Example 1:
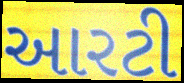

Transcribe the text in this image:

આરટી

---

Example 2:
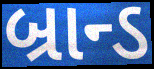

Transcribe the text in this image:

બ્રાન્ડ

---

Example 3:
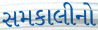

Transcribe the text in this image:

સમકાલીનો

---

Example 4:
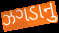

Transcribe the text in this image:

ઝગડાનુ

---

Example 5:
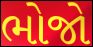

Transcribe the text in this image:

ભોજો